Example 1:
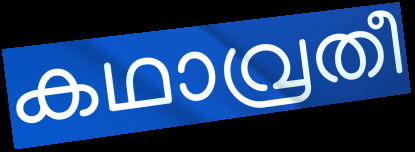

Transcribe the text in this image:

കഥാവ്രതീ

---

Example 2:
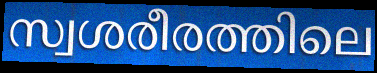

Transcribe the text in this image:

സ്വശരീരത്തിലെ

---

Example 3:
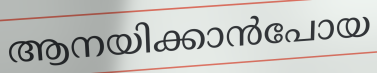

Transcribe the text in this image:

ആനയിക്കാൻപോയ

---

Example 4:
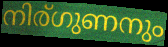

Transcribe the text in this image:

നിര്ഗുണനും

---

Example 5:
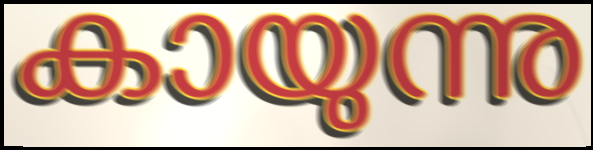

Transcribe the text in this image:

കായുന്നു